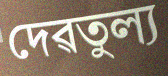
দেৱতুল্য